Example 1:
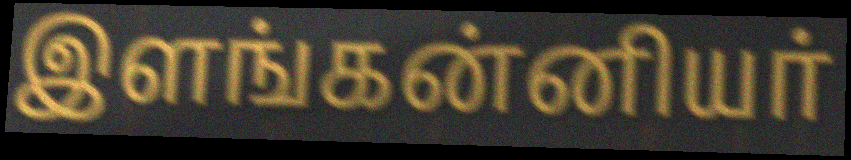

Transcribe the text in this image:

இளங்கன்னியர்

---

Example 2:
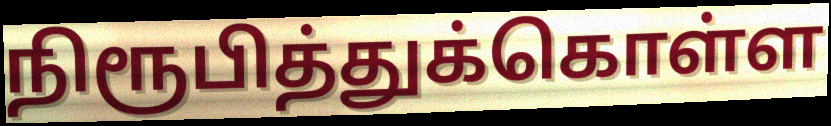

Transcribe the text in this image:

நிரூபித்துக்கொள்ள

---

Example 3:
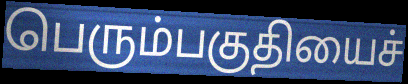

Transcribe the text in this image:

பெரும்பகுதியைச்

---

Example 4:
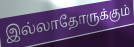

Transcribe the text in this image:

இல்லாதோருக்கும்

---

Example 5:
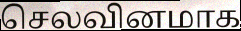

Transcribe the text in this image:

செலவினமாக